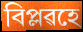
বিপ্লৱহে